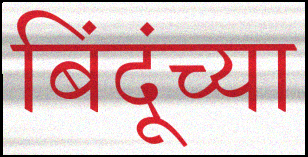
बिंदूंच्या